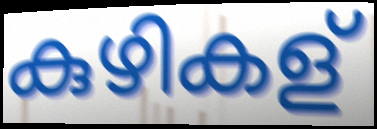
കുഴികള്